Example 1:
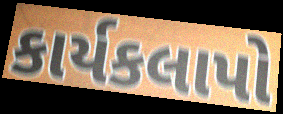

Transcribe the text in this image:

કાર્યકલાપો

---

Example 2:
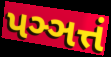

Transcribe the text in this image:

પઞ્ઞત્તં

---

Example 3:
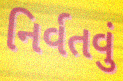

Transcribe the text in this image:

નિર્વતવું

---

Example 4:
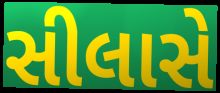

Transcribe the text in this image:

સીલાસે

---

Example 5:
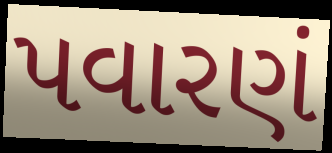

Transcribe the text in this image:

પવારણં